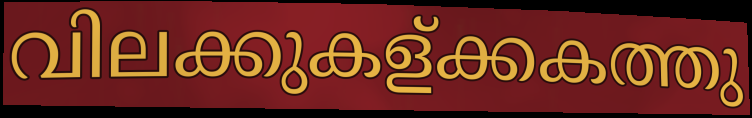
വിലക്കുകള്ക്കകത്തു